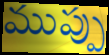
ముప్పు